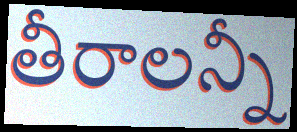
తీరాలన్నీ